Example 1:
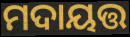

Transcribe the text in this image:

ମଦାୟତ୍ତ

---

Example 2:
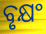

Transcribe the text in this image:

ବୃକ୍ଷଂ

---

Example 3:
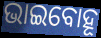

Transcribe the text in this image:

ଭାଇବୋହୂ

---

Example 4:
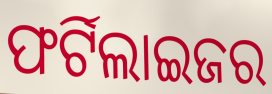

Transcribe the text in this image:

ଫର୍ଟିଲାଇଜର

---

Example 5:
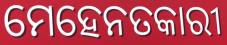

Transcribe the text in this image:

ମେହେନତକାରୀ